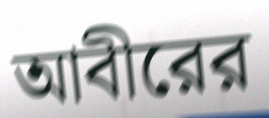
আবীরের